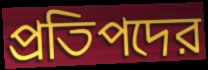
প্রতিপদের